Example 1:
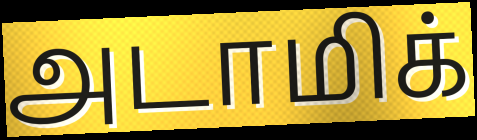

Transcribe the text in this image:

அடாமிக்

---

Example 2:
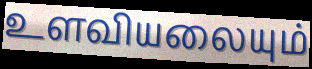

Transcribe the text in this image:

உளவியலையும்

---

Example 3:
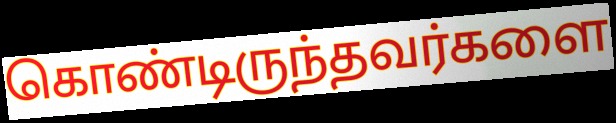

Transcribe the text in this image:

கொண்டிருந்தவர்களை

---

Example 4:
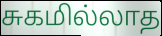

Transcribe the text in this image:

சுகமில்லாத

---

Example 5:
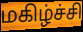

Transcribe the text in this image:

மகிழ்ச்சி